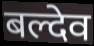
बल्देव